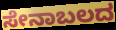
ಸೇನಾಬಲದ